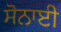
ਸੋਨਾਈ